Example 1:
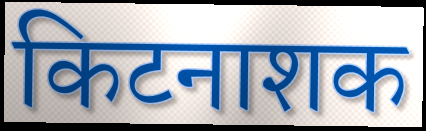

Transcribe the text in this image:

किटनाशक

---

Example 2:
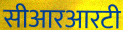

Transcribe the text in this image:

सीआरआरटी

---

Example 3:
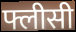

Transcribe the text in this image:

फ्लीसी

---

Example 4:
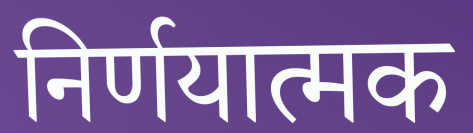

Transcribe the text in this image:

निर्णयात्मक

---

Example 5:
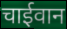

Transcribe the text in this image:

चाईवान